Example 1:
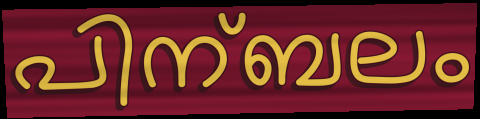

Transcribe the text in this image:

പിന്ബലം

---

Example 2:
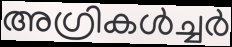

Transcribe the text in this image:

അഗ്രികൾച്ചർ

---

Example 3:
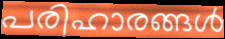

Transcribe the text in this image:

പരിഹാരങ്ങൾ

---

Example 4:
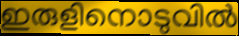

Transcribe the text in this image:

ഇരുളിനൊടുവിൽ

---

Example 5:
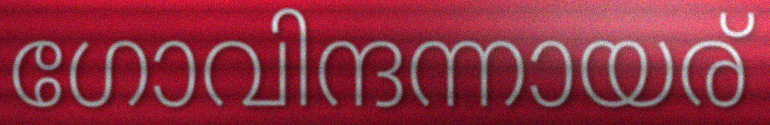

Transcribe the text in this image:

ഗോവിന്ദന്നായര്